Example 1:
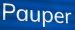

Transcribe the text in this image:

Pauper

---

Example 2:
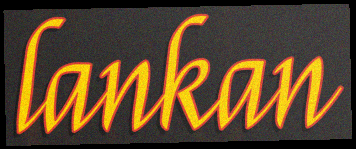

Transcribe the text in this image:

lankan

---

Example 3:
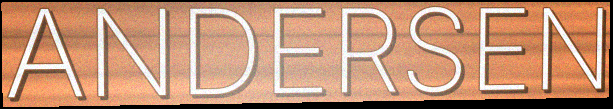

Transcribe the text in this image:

ANDERSEN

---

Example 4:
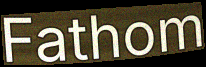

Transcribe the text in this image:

Fathom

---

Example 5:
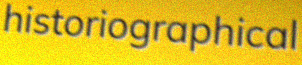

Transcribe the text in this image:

historiographical